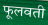
फूलवती